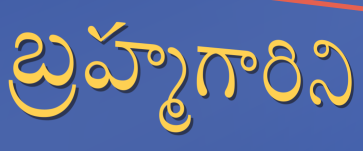
బ్రహ్మగారిని